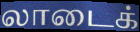
லாடைக்